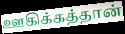
ஊகிக்கத்தான்